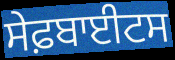
ਸੇਫ਼ਬਾਈਟਸ